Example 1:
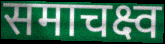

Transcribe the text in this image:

समाचक्ष्व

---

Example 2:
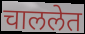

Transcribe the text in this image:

चाललेत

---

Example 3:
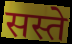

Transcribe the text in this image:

सस्ते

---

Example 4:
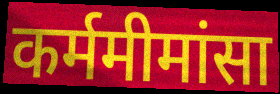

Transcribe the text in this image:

कर्ममीमांसा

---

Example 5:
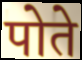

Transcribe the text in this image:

पोते